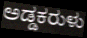
ಅಡ್ಡಕರುಳು